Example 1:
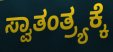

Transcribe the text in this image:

ಸ್ವಾತಂತ್ರ್ಯಕ್ಕೆ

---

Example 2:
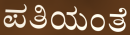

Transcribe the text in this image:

ಪತಿಯಂತೆ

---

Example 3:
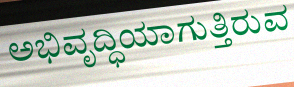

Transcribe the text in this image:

ಅಭಿವೃದ್ಧಿಯಾಗುತ್ತಿರುವ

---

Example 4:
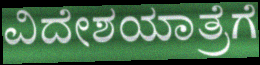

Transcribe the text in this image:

ವಿದೇಶಯಾತ್ರೆಗೆ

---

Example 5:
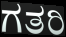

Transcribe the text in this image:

ಗತರಿ